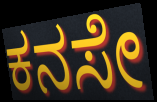
ಕನಸೇ